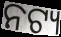
ନଟ୍ୟ